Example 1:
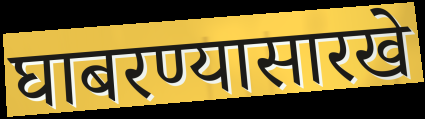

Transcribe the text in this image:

घाबरण्यासारखे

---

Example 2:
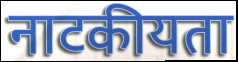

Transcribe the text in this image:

नाटकीयता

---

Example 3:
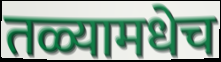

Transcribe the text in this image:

तळ्यामधेच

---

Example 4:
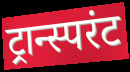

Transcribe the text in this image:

ट्रान्स्परंट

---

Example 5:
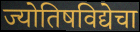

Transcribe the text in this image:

ज्योतिषविद्येचा